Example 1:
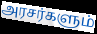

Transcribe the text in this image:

அரசர்களும்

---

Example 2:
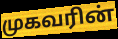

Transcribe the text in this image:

முகவரின்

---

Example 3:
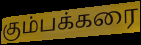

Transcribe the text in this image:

கும்பக்கரை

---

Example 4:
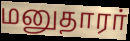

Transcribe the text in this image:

மனுதாரர்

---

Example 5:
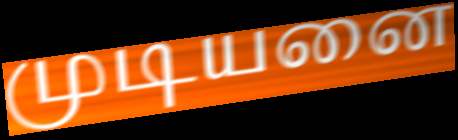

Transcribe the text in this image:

முடியனை